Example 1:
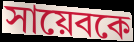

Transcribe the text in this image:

সায়েবকে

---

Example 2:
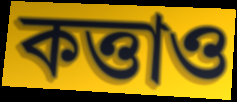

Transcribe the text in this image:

কত্তাও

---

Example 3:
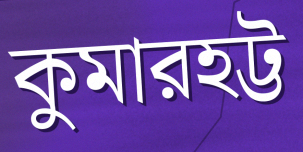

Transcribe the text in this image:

কুমারহট্ট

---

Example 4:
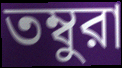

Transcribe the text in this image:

তম্বুরা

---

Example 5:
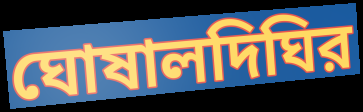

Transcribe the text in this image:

ঘোষালদিঘির